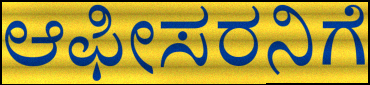
ಆಫೀಸರನಿಗೆ